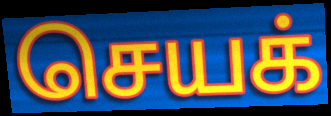
செயக்